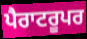
ਪੈਰਾਟਰੂਪਰ